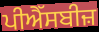
ਪੀਐੱਸਬੀਜ਼